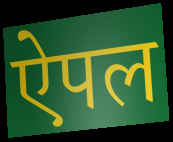
ऐपल